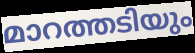
മാറത്തടിയും